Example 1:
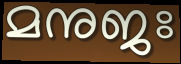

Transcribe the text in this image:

മനുജഃ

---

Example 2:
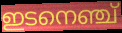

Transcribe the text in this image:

ഇടനെഞ്ച്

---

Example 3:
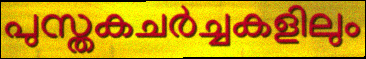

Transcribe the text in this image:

പുസ്തകചർച്ചകളിലും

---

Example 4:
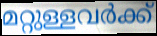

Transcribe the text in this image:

മറ്റുള്ളവർക്ക്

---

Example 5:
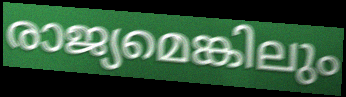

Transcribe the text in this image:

രാജ്യമെങ്കിലും